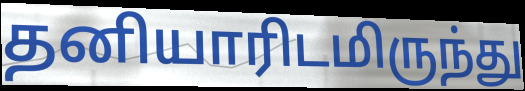
தனியாரிடமிருந்து